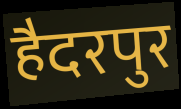
हैदरपुर